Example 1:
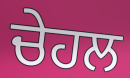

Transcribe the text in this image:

ਚੇਹਲ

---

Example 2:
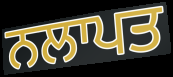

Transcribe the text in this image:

ਨਲਾਪਤ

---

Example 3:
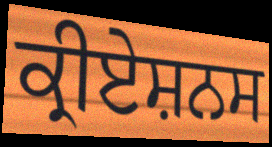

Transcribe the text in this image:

ਕ੍ਰੀਏਸ਼ਨਸ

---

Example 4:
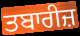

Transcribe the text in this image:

ਤਬਾਰੀਜ਼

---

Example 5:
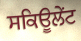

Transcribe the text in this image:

ਸਕਿਊਲੇਂਟ